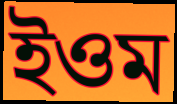
ইওম